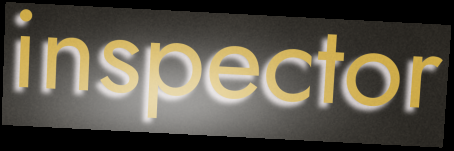
inspector